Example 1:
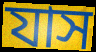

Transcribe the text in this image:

যাস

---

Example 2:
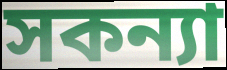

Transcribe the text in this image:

সকন্যা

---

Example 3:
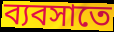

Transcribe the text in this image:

ব্যবসাতে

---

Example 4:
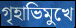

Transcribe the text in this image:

গৃহাভিমুখে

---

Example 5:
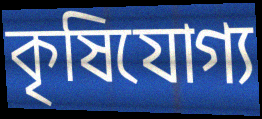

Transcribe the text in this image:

কৃষিযোগ্য